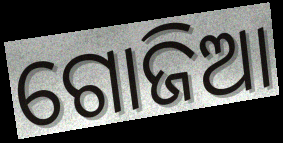
ଗୋଜିଆ